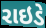
રાઇડે